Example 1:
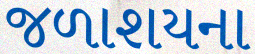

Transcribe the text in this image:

જળાશયના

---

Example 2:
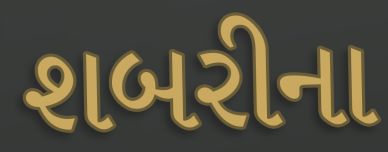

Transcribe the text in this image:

શબરીના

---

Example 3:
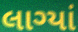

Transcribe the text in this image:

લાગ્યાં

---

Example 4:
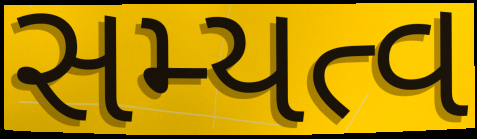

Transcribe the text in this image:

સમ્યત્વ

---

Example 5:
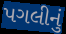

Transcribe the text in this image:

પગલીનું